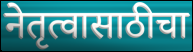
नेतृत्वासाठीचा